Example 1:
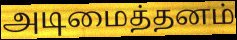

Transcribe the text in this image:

அடிமைத்தனம்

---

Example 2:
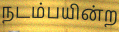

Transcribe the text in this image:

நடம்பயின்ற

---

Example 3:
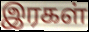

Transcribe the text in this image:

இரகள்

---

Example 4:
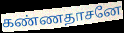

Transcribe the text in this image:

கண்ணதாசனே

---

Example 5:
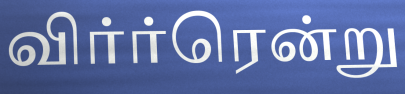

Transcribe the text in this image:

விர்ர்ரென்று